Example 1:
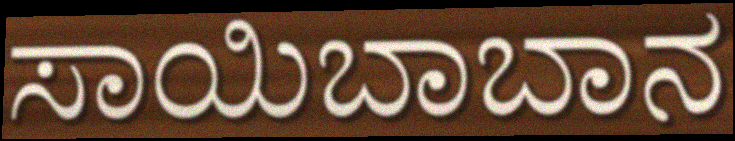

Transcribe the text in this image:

ಸಾಯಿಬಾಬಾನ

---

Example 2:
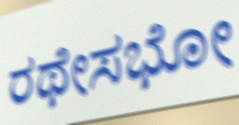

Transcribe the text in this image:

ರಥೇಸಭೋ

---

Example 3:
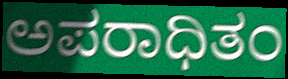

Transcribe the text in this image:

ಅಪರಾಧಿತಂ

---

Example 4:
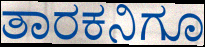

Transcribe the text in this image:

ತಾರಕನಿಗೂ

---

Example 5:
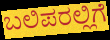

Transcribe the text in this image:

ಬಲಿಪರಲ್ಲಿಗೆ